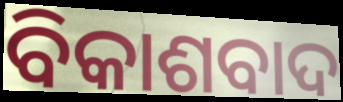
ବିକାଶବାଦ